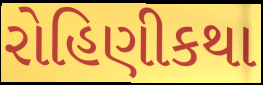
રોહિણીકથા